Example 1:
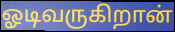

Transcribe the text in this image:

ஓடிவருகிறான்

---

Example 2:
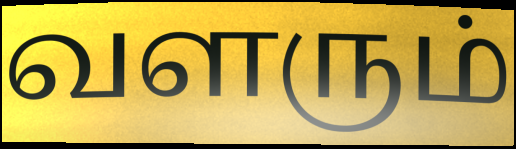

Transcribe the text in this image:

வளரும்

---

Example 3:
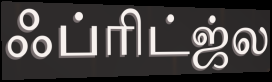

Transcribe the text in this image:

ஃப்ரிட்ஜ்ல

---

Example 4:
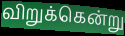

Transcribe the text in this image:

விறுக்கென்று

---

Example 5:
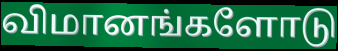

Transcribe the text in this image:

விமானங்களோடு